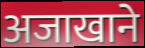
अजाखाने